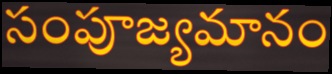
సంపూజ్యమానం